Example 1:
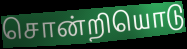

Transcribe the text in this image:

சொன்றியொடு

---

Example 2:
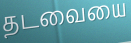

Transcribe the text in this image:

தடவையை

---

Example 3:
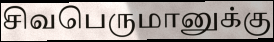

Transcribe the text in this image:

சிவபெருமானுக்கு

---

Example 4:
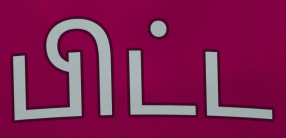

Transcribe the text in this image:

பிட்ட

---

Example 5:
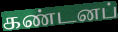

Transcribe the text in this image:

கண்டனப்